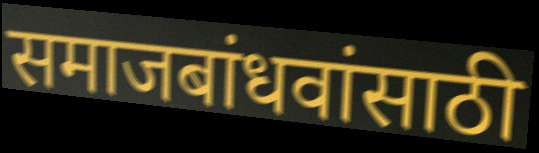
समाजबांधवांसाठी